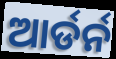
ଆର୍ଡର୍ନ